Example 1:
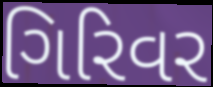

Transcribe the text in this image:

ગિરિવર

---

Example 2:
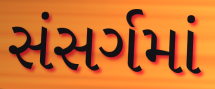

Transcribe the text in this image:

સંસર્ગમાં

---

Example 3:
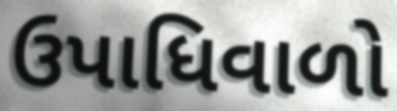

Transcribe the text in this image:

ઉપાધિવાળો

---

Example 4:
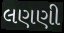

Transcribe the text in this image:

લણણી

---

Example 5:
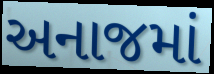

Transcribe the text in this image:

અનાજમાં